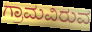
ಗ್ರಾಮವಿರುವ